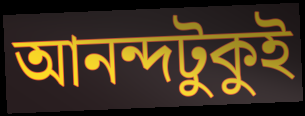
আনন্দটুকুই